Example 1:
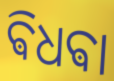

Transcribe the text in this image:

ଵିଧଵା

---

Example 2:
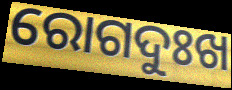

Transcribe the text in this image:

ରୋଗଦୁଃଖ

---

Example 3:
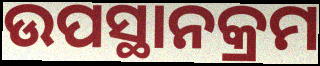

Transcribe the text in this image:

ଉପସ୍ଥାନକ୍ରମ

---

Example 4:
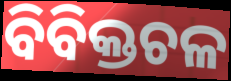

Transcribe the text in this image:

ବିବିକ୍ତଚଳ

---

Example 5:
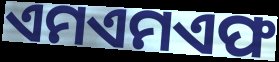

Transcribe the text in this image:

ଏମଏମଏଫ